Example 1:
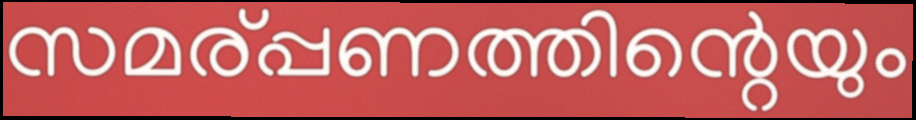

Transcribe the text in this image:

സമര്പ്പണത്തിന്റെയും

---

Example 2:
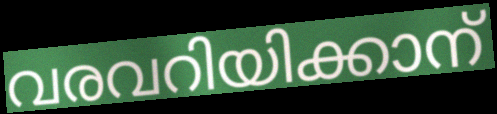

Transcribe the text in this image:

വരവറിയിക്കാന്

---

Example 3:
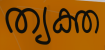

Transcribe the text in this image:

ത്യക്ത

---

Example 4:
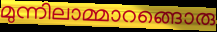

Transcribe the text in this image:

മുന്നിലാമ്മാറങ്ങൊരു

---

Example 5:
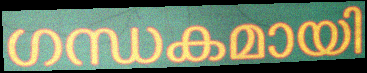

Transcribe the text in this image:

ഗന്ധകമായി